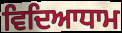
ਵਿਦਿਆਧਾਮ